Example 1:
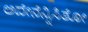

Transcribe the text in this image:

ಅದೇನೆನ್ನಿಸಿತೋ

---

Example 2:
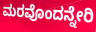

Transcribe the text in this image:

ಮರವೊಂದನ್ನೇರಿ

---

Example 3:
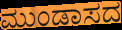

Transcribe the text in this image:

ಮುಂಡಾಸದ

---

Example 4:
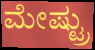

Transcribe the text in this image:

ಮೇಷ್ಟ್ರು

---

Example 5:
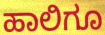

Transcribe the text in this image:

ಹಾಲಿಗೂ